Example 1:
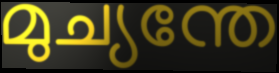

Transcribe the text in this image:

മുച്യന്തേ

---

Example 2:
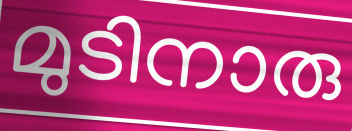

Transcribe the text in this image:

മുടിനാരു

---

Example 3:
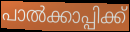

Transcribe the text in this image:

പാൽക്കാപ്പിക്ക്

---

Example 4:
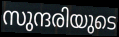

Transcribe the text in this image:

സുന്ദരിയുടെ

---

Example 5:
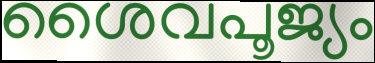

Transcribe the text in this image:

ശൈവപൂജ്യം